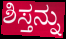
ಶಿಸ್ತನ್ನು